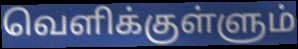
வெளிக்குள்ளும்